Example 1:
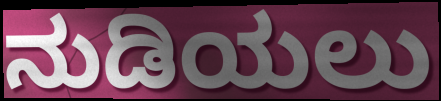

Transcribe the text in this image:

ನುಡಿಯಲು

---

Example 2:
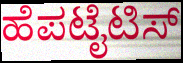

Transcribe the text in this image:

ಹೆಪಟೈಟಿಸ್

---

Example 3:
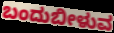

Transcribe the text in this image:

ಬಂದುಬೀಳುವ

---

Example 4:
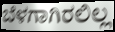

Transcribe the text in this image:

ಬೆಳಗಾಗಿರಲಿಲ್ಲ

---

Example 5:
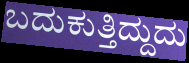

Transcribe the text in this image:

ಬದುಕುತ್ತಿದ್ದುದು